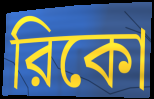
রিকো